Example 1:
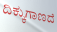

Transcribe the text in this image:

ದಿಕ್ಕುಗಾಣದೆ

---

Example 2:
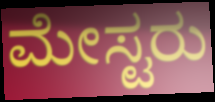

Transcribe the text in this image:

ಮೇಸ್ಟರು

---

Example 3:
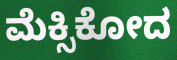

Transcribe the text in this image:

ಮೆಕ್ಸಿಕೋದ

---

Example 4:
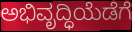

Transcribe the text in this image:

ಅಭಿವೃದ್ಧಿಯೆಡೆಗೆ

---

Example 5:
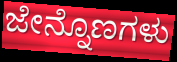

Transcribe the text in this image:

ಜೇನ್ನೊಣಗಳು